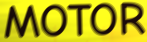
MOTOR